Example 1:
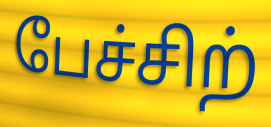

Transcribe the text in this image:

பேச்சிற்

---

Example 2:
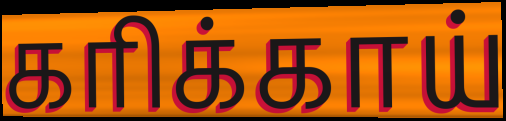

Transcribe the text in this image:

கரிக்காய்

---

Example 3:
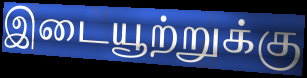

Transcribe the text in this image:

இடையூற்றுக்கு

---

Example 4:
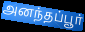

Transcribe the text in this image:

அனந்தப்பூர்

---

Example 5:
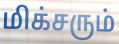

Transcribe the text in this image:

மிக்சரும்